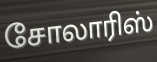
சோலாரிஸ்